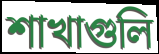
শাখাগুলি